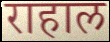
राहाल